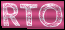
RTO